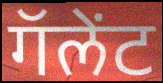
गॅलेंट